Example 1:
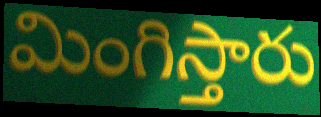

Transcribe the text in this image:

మింగిస్తారు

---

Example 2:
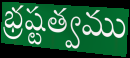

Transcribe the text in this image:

భ్రష్టత్వము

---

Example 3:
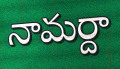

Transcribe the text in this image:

నామర్దా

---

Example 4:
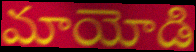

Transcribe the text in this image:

మాయోడి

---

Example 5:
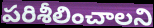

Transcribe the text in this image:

పరిశీలించాలని